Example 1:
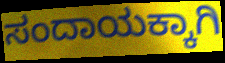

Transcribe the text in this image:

ಸಂದಾಯಕ್ಕಾಗಿ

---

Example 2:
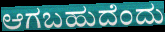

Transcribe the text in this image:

ಆಗಬಹುದೆಂದು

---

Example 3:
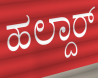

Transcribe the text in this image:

ಹಲ್ದಾರ್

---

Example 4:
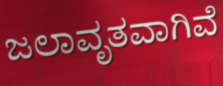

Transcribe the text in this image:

ಜಲಾವೃತವಾಗಿವೆ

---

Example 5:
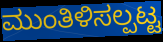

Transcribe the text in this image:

ಮುಂತಿಳಿಸಲ್ಪಟ್ಟ